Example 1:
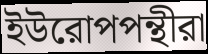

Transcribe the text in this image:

ইউরোপপন্থীরা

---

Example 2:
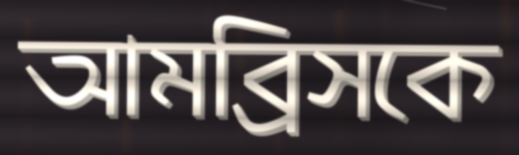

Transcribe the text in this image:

আমব্রিসকে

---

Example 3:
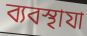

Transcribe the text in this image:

ব্যবস্থাযা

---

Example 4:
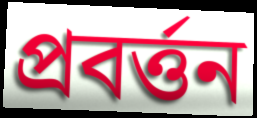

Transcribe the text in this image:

প্রবর্ত্তন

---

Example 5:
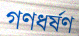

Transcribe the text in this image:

গণধর্ষণ